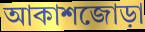
আকাশজোড়া